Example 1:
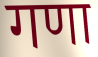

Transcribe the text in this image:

गणा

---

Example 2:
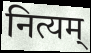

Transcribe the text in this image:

नित्यम्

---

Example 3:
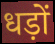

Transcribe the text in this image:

धड़ों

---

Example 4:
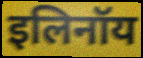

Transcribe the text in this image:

इलिनॉय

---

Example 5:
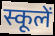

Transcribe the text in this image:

स्कूलें